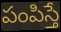
పంపిస్తే